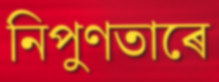
নিপুণতাৰে